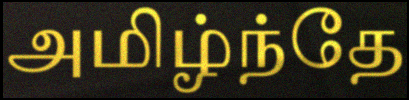
அமிழ்ந்தே